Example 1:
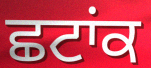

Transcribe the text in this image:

ਛਟਾਂਕ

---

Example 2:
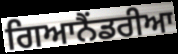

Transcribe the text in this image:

ਗਿਆਨੈਂਡਰੀਆ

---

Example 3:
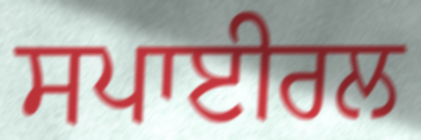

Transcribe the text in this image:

ਸਪਾਈਰਲ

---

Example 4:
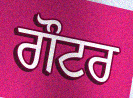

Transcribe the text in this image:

ਗੌਟਰ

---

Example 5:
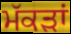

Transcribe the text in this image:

ਮੱਕੜਾਂ